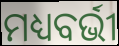
ମଧ୍ଯବର୍ଭୀ